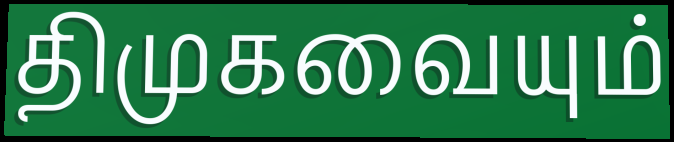
திமுகவையும்